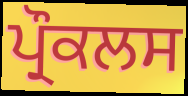
ਪ੍ਰੌਕਲਸ